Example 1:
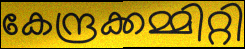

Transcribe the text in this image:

കേന്ദ്രക്കമ്മിറ്റി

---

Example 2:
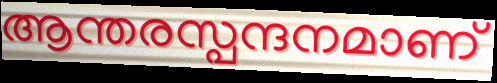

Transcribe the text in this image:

ആന്തരസ്പന്ദനമാണ്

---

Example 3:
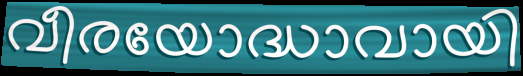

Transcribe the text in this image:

വീരയോദ്ധാവായി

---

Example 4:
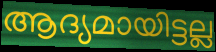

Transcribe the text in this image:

ആദ്യമായിട്ടല്ല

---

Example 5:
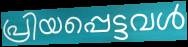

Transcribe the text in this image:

പ്രിയപ്പെട്ടവൾ